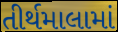
તીર્થમાલામાં